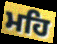
ਮਹਿ